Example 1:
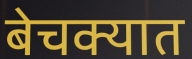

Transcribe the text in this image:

बेचक्यात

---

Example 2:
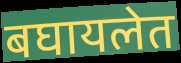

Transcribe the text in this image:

बघायलेत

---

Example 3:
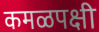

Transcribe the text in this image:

कमळपक्षी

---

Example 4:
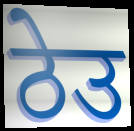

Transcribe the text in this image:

ठेउ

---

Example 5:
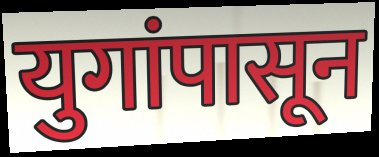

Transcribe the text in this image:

युगांपासून